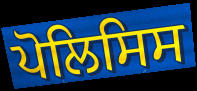
ਪੋਲਿਸਿਸ